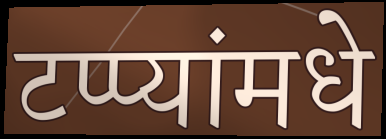
टप्प्यांमधे